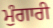
ਮੁੰਗਾਰੀ